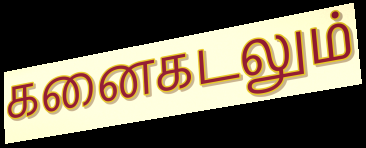
கனைகடலும்